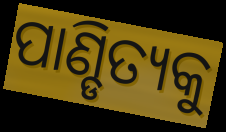
ପାଣ୍ଡିତ୍ୟକୁ